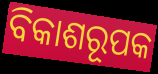
ବିକାଶରୂପକ